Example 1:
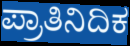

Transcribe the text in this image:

ಪ್ರಾತಿನಿದಿಕ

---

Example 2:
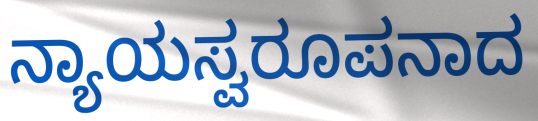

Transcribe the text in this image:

ನ್ಯಾಯಸ್ವರೂಪನಾದ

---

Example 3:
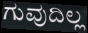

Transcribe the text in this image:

ಗುವುದಿಲ್ಲ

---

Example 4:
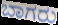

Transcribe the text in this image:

ಬಾಗರು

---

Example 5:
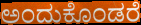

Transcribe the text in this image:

ಅಂದುಕೊಂಡರೆ